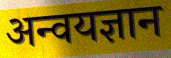
अन्वयज्ञान